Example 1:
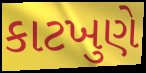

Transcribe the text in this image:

કાટખુણે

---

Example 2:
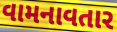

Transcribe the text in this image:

વામનાવતાર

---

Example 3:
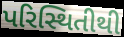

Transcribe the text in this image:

પરિસ્થિતીથી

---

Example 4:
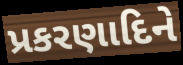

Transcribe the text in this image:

પ્રકરણાદિને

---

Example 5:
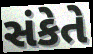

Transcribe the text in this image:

સંકેતે